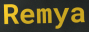
Remya